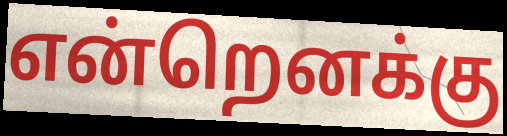
என்றெனக்கு